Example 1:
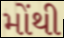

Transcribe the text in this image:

મોંથી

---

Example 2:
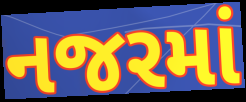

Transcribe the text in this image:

નજરમાં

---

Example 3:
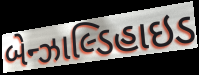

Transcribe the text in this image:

બેન્ઝાલ્ડિહાઇડ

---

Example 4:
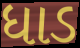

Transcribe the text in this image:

ધાડ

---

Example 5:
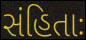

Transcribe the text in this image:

સંહિતાઃ